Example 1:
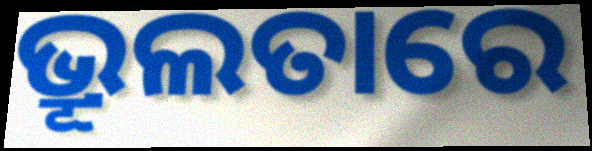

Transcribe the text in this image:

ଭ୍ରୂଲତାରେ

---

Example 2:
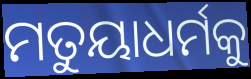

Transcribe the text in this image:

ମତୁୟାଧର୍ମକୁ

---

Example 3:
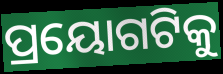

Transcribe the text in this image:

ପ୍ରୟୋଗଟିକୁ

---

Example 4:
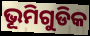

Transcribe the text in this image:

ଭୂମିଗୁଡିକ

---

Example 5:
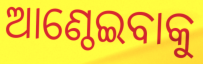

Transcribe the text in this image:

ଆଣ୍ଠେଇବାକୁ